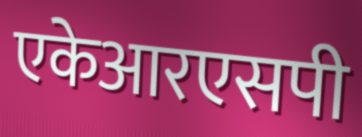
एकेआरएसपी